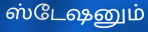
ஸ்டேஷனும்